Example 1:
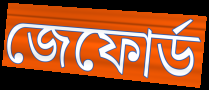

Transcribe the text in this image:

জেফোর্ড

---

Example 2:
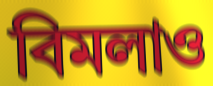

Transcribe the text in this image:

বিমলাও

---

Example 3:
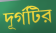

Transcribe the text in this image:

দূর্গটির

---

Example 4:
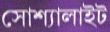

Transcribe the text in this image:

সোশ্যালাইট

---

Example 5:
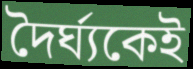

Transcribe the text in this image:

দৈর্ঘ্যকেই